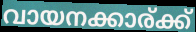
വായനക്കാര്ക്ക്